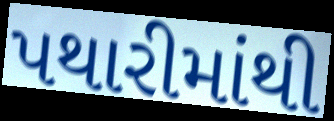
પથારીમાંથી